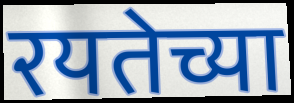
रयतेच्या